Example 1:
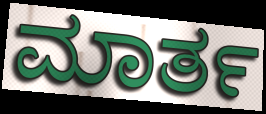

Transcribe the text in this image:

ಮಾರ್ತ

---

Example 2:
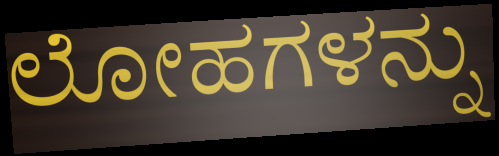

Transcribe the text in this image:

ಲೋಹಗಳನ್ನು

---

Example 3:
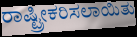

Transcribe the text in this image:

ರಾಷ್ಟ್ರೀಕರಿಸಲಾಯಿತು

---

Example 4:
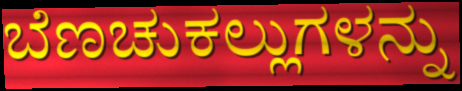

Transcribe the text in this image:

ಬೆಣಚುಕಲ್ಲುಗಳನ್ನು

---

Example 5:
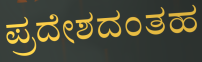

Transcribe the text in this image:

ಪ್ರದೇಶದಂತಹ